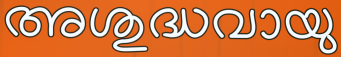
അശുദ്ധവായു